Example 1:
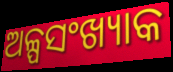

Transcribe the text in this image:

ଅଳ୍ପସଂଖ୍ୟାକ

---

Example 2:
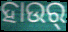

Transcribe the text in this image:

ହାଉର୍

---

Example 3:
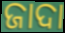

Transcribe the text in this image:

ଜାଦା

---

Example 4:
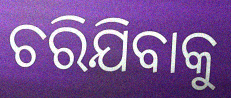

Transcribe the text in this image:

ଚରିଯିବାକୁ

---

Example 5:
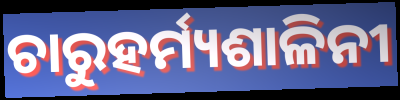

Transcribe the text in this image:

ଚାରୁହର୍ମ୍ୟଶାଳିନୀ